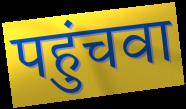
पहुंचवा